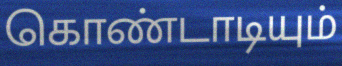
கொண்டாடியும்